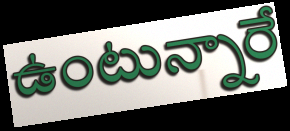
ఉంటున్నారే